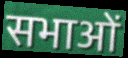
सभाओं